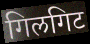
गिलगिट